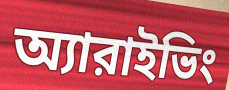
অ্যারাইভিং